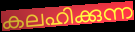
കലഹിക്കുന്ന